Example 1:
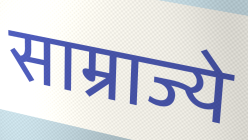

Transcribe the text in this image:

साम्राज्ये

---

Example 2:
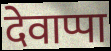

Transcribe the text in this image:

देवाप्पा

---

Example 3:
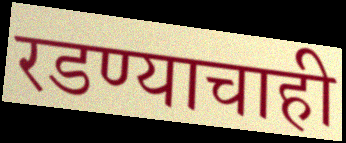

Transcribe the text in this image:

रडण्याचाही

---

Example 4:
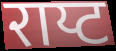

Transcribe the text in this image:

राय्ट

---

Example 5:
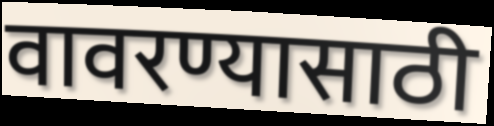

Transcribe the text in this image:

वावरण्यासाठी